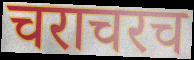
चराचरच